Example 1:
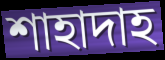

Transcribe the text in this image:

শাহাদাহ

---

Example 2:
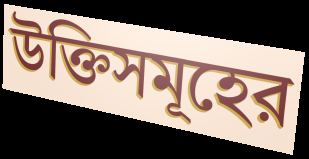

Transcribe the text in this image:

উক্তিসমূহের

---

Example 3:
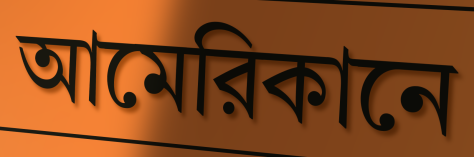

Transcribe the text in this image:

আমেরিকানে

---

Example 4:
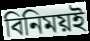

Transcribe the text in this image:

বিনিময়ই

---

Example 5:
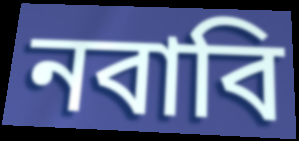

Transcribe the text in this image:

নবাবি